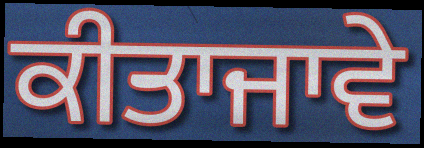
ਕੀਤਾਜਾਵੇ